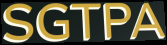
SGTPA